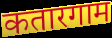
कतारगाम